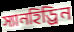
স্যানহিড্রিন